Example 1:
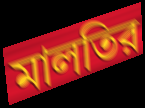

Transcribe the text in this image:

মালতির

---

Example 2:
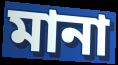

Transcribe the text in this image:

মানা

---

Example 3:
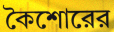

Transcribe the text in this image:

কৈশোরের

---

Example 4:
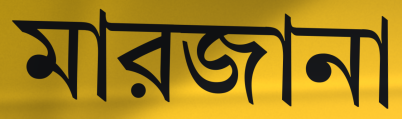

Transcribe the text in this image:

মারজানা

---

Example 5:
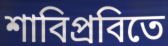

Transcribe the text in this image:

শাবিপ্রবিতে